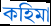
কহিমা